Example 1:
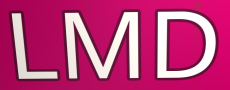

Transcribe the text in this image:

LMD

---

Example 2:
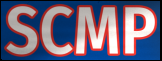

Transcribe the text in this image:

SCMP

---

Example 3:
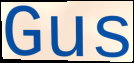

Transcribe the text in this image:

Gus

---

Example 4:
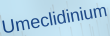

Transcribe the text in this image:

Umeclidinium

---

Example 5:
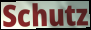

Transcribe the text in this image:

Schutz